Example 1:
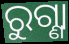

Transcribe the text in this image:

ରୁଗ୍ଣା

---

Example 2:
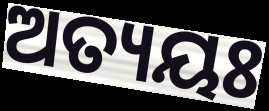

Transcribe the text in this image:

ଅତ୍ୟୟଃ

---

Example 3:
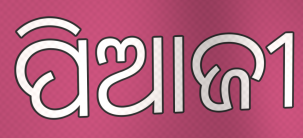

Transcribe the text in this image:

ପିଆଜୀ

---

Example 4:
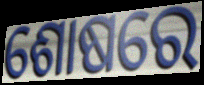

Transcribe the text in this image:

ଶୋଷରେ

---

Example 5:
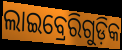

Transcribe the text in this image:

ଲାଇବ୍ରେରିଗୁଡ଼ିକ